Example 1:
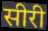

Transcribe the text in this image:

सीरी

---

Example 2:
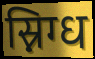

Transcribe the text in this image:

स्निग्ध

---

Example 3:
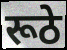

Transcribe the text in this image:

रूठे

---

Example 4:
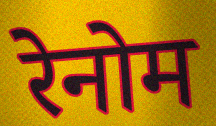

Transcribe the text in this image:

रेनोम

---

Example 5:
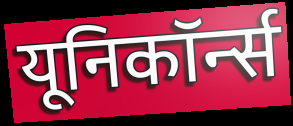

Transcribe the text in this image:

यूनिकॉर्न्स